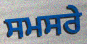
ਸਮਸਰੇ